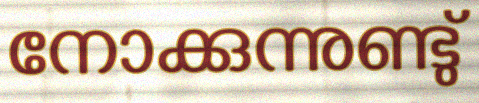
നോക്കുന്നുണ്ടു്